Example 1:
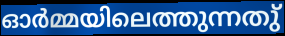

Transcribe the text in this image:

ഓർമ്മയിലെത്തുന്നതു്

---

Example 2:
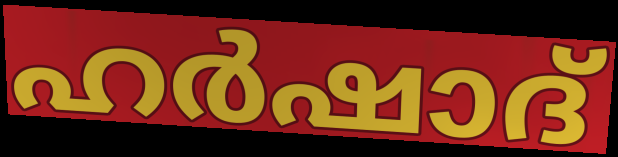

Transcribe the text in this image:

ഹർഷാദ്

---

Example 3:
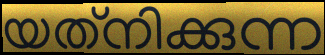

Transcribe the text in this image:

യത്‌നിക്കുന്ന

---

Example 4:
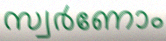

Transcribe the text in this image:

സ്വർണോം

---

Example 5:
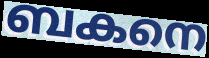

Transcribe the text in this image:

ബകനെ